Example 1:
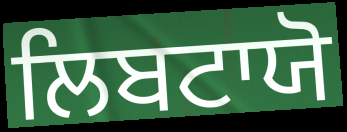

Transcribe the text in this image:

ਲਿਬਟਾਯੋ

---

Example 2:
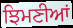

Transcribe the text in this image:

ਝਿਮਣੀਆਂ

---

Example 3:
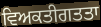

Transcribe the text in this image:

ਵਿਅਕਤੀਗਤਤਾ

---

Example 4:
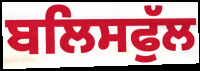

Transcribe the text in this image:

ਬਲਿਸਫੁੱਲ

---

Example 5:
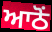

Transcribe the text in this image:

ਆਠੋਂ